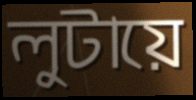
লুটায়ে